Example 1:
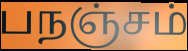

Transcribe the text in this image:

பநஞ்சம்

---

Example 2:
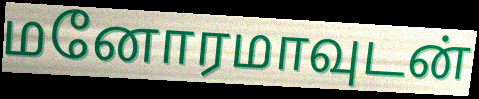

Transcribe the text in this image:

மனோரமாவுடன்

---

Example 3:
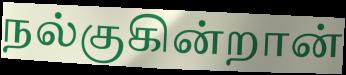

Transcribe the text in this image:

நல்குகின்றான்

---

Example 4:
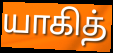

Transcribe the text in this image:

யாகித்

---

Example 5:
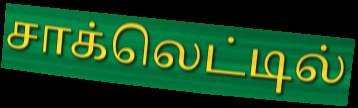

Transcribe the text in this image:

சாக்லெட்டில்